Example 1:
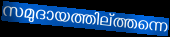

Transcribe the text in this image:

സമുദായത്തില്ത്തന്നെ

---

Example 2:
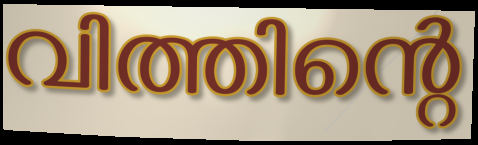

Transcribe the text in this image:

വിത്തിന്റെ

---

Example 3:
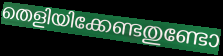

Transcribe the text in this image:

തെളിയിക്കേണ്ടതുണ്ടോ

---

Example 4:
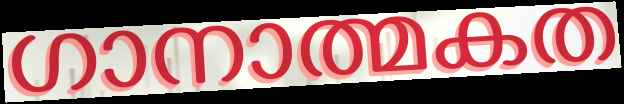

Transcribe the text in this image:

ഗാനാത്മകത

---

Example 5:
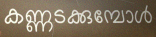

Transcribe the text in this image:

കണ്ണടക്കുമ്പോൾ